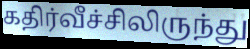
கதிர்வீச்சிலிருந்து